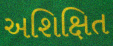
અશિક્ષિત